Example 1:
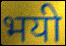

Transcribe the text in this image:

भयी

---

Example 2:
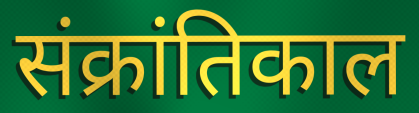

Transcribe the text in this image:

संक्रांतिकाल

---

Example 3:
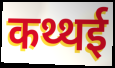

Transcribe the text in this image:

कथ्थई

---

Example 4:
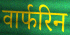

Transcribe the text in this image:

वार्फरिन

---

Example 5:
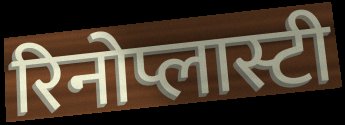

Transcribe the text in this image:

रिनोप्लास्टी